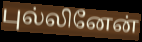
புல்லினேன்